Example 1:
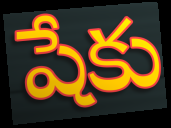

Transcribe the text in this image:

షేకు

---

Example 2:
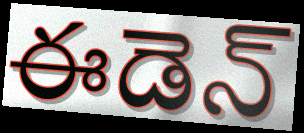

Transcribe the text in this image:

ఈడెన్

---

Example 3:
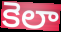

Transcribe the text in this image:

కెలా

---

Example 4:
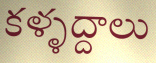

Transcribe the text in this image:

కళ్ళద్దాలు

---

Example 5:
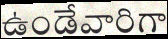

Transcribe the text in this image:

ఉండేవారిగా